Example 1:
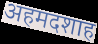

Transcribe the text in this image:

अहमदशाह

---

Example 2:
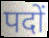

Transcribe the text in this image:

पदों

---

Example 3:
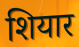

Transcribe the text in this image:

शियार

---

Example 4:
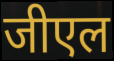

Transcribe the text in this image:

जीएल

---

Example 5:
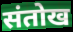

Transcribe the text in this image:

संतोख